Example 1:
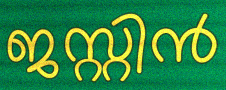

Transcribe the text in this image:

ജസ്റ്റിൻ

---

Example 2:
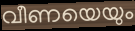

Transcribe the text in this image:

വീണയെയും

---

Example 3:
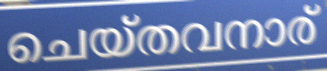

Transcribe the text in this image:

ചെയ്തവനാര്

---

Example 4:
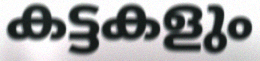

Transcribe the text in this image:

കട്ടകളും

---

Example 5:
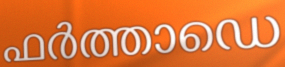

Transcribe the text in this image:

ഫർത്താഡെ